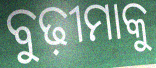
ବୁଢ଼ୀମାକୁ